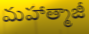
మహాత్మాజీ